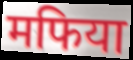
मफिया